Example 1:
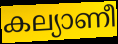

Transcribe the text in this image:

കല്യാണീ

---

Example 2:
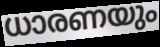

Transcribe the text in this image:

ധാരണയും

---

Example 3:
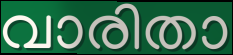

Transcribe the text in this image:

വാരിതാ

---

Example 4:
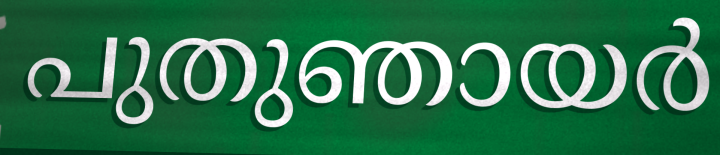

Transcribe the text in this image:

പുതുഞായർ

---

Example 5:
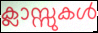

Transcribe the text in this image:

ക്ലാസ്സുകൾ